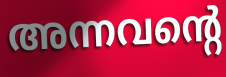
അന്നവന്റെ